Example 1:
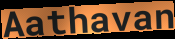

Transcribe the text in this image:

Aathavan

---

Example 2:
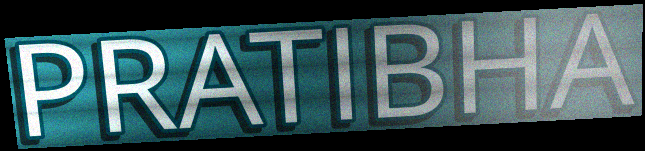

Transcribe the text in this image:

PRATIBHA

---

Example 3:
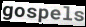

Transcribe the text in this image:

gospels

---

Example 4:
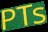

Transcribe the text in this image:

PTs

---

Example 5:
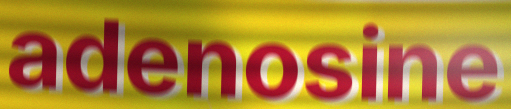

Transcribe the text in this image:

adenosine